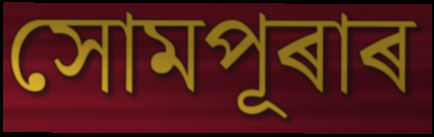
সোমপূৰাৰ